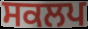
ਸਕਲਪ